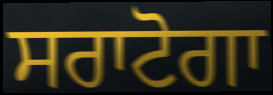
ਸਰਾਟੋਗਾ